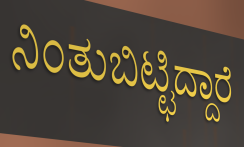
ನಿಂತುಬಿಟ್ಟಿದ್ದಾರೆ